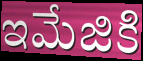
ఇమేజికి